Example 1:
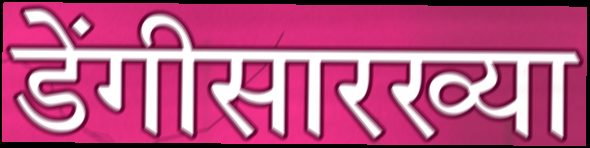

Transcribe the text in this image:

डेंगीसारख्या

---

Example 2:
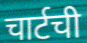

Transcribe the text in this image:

चार्टची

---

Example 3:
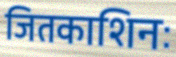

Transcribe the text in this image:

जितकाशिनः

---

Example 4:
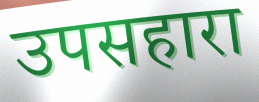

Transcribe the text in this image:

उपसहारा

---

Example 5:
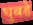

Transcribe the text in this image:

घुबडे